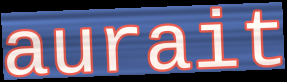
aurait